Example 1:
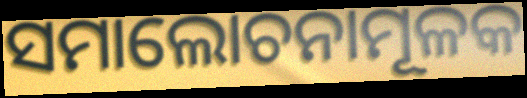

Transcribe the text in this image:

ସମାଲୋଚନାମୂଳକ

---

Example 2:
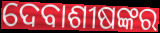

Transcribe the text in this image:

ଦେବାଶୀଷଙ୍କର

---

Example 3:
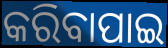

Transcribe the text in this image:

କରିବାପାଇ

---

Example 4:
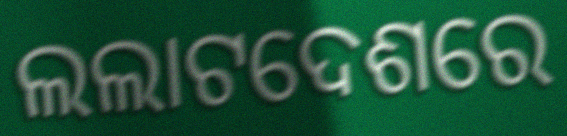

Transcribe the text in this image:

ଲଲାଟଦେଶରେ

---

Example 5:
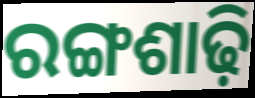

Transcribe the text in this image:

ରଙ୍ଗଶାଢ଼ି